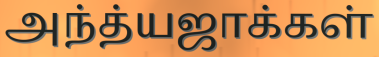
அந்த்யஜாக்கள்